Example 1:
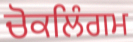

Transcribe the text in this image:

ਚੋਕਲਿੰਗਮ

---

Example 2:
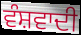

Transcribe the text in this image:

ਵੰਸ਼ਵਾਦੀ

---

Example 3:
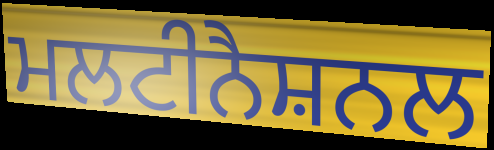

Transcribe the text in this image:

ਮਲਟੀਨੈਸ਼ਨਲ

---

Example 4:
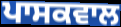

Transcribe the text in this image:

ਪਾਸਕਵਾਲ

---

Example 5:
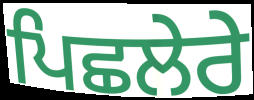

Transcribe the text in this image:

ਪਿਛਲੇਰੇ